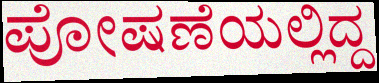
ಪೋಷಣೆಯಲ್ಲಿದ್ದ